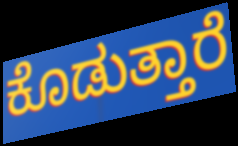
ಕೊಡುತ್ತಾರೆ